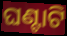
ଘଣ୍ଟାଟି